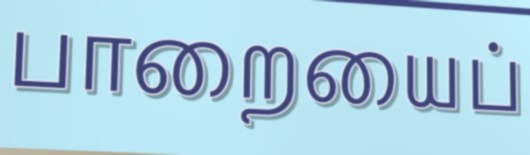
பாறையைப்